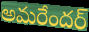
అమరేందర్